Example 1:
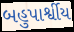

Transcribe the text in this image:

બહુપાર્શ્વીય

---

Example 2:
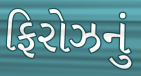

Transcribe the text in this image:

ફિરોઝનું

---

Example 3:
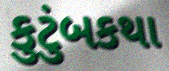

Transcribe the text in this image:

કુટુંબકથા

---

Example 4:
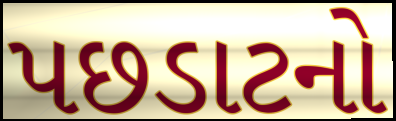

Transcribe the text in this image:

પછડાટનો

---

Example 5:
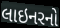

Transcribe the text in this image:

લાઇનરનો